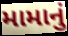
મામાનું